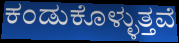
ಕಂಡುಕೊಳ್ಳುತ್ತವೆ